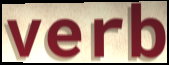
verb